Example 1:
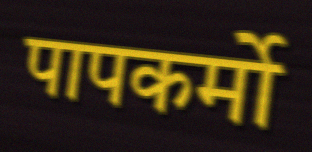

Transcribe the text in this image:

पापकर्मो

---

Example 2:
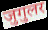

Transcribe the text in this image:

जुगुलर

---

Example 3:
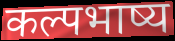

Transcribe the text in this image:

कल्पभाष्य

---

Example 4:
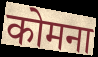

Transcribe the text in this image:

कोमना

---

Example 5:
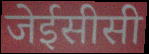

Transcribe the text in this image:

जेईसीसी